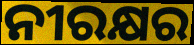
ନୀରକ୍ଷର